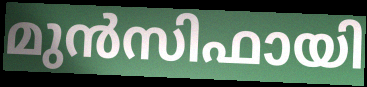
മുൻസിഫായി